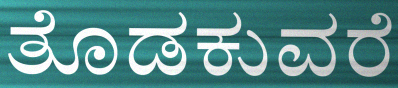
ತೊಡಕುವರೆ